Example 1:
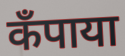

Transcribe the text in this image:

कँपाया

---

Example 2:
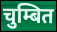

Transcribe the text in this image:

चुम्बित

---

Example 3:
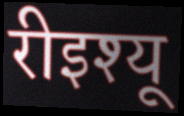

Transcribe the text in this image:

रीइश्यू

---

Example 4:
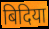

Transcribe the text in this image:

बिदिया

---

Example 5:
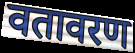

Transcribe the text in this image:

वतावरण